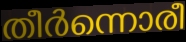
തീർന്നൊരീ